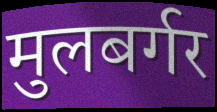
मुलबर्गर